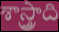
శాస్త్రాది